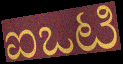
ಐಒಟಿ